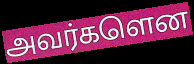
அவர்களென